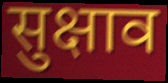
सुक्षाव